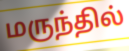
மருந்தில்